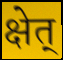
क्षेत्